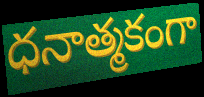
ధనాత్మకంగా